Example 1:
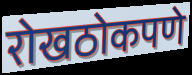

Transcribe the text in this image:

रोखठोकपणे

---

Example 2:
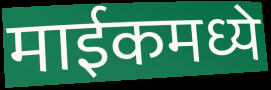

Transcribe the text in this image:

माईकमध्ये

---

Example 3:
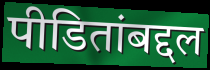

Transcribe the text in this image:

पीडितांबद्दल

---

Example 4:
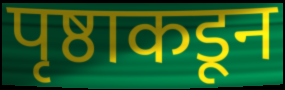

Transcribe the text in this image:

पृष्ठाकडून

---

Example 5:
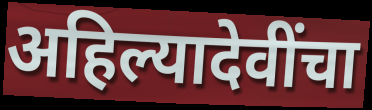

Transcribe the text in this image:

अहिल्यादेवींचा